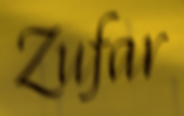
Zufar